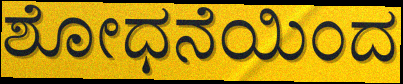
ಶೋಧನೆಯಿಂದ